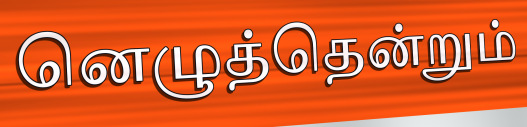
னெழுத்தென்றும்